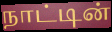
நாட்டின்